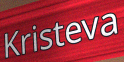
Kristeva